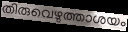
തിരുവെഴുത്താശയം